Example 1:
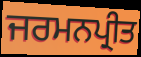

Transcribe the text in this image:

ਜਰਮਨਪ੍ਰੀਤ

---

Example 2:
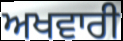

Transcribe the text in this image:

ਅਖਵਾਰੀ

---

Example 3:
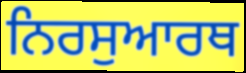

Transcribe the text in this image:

ਨਿਰਸੁਆਰਥ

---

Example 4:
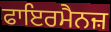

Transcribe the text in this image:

ਫਾਇਰਮੈਨਜ਼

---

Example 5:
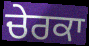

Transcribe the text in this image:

ਚੇਰਕਾ